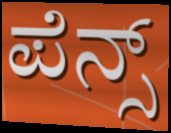
ಪೆನ್ಸ್